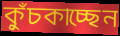
কুঁচকাচ্ছেন